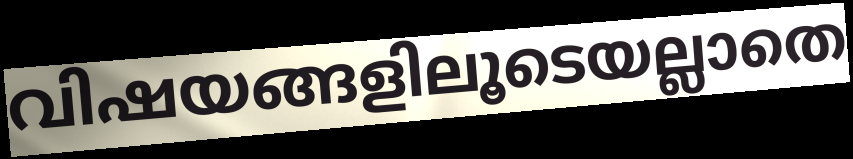
വിഷയങ്ങളിലൂടെയല്ലാതെ